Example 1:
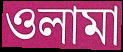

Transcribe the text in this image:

ওলামা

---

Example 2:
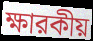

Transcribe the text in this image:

ক্ষারকীয়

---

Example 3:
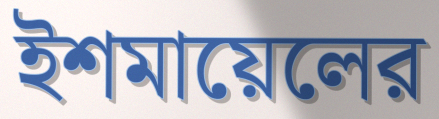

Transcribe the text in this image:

ইশমায়েলের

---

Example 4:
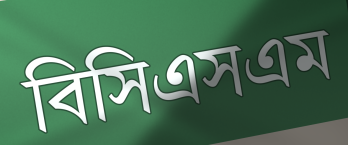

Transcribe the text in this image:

বিসিএসএম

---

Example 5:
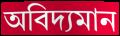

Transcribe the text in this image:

অবিদ্যমান